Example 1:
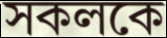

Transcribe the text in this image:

সকলকে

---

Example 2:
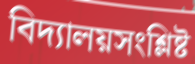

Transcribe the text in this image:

বিদ্যালয়সংশ্লিষ্ট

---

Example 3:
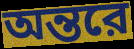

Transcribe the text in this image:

অন্তরে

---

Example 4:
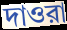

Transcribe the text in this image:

দাওরা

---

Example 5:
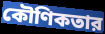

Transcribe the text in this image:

কৌণিকতার